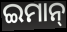
ଇମାନ୍